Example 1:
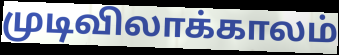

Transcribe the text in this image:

முடிவிலாக்காலம்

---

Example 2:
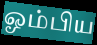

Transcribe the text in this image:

ஓம்பிய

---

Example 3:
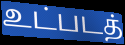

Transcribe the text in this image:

உட்படத்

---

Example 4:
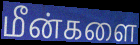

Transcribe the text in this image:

மீன்களை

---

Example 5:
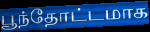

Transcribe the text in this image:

பூந்தோட்டமாக